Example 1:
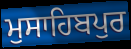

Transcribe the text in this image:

ਮੁਸਾਹਿਬਪੁਰ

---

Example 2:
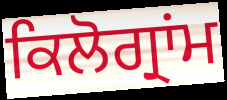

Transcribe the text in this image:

ਕਿਲੋਗ੍ਰਾਂਮ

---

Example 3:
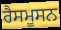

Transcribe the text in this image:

ਰੈਸਮੂਸਨ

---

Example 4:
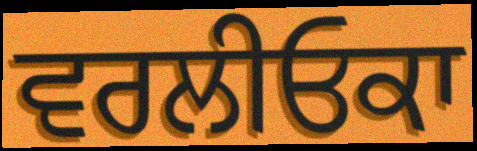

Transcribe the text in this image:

ਵਰਲੀਓਕਾ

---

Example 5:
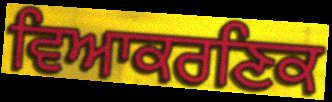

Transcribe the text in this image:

ਵਿਆਕਰਣਿਕ